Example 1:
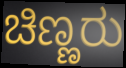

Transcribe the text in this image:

ಚಿಣ್ಣರು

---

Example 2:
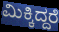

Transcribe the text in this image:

ಮಿಕ್ಕಿದ್ದರೆ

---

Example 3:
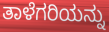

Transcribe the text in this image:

ತಾಳೆಗರಿಯನ್ನು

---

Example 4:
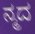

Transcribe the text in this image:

ನ್ಮದ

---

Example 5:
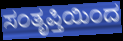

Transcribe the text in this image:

ಸಂತೃಪ್ತಿಯಿಂದ